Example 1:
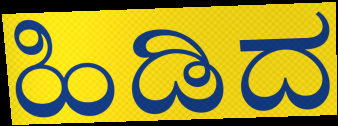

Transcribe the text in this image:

ಹಿಡಿದ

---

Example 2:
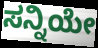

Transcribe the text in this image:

ಸನ್ನಿಯೇ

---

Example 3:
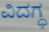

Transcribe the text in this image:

ವಿದಗ್ಧ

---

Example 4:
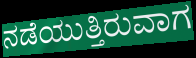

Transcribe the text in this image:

ನಡೆಯುತ್ತಿರುವಾಗ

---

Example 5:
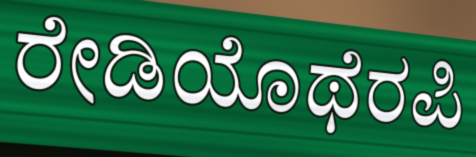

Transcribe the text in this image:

ರೇಡಿಯೊಥೆರಪಿ